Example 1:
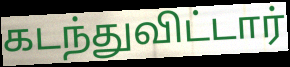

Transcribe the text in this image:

கடந்துவிட்டார்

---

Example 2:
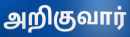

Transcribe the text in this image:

அறிகுவார்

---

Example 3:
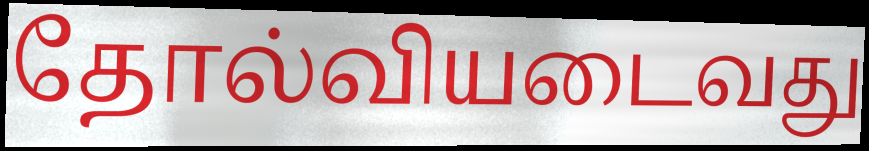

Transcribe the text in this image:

தோல்வியடைவது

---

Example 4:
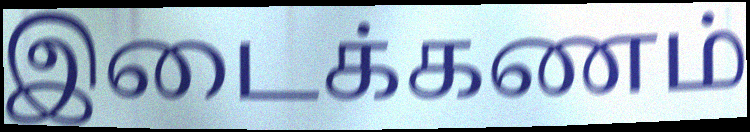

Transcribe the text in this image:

இடைக்கணம்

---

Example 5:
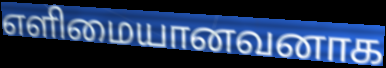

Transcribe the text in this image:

எளிமையானவனாக